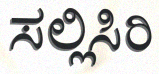
ಸಲ್ಲಿಸಿರಿ